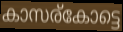
കാസര്കോട്ടെ